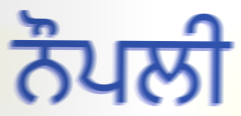
ਨੌਪਲੀ